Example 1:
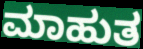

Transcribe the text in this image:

ಮಾಹುತ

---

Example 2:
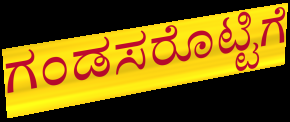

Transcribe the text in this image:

ಗಂಡಸರೊಟ್ಟಿಗೆ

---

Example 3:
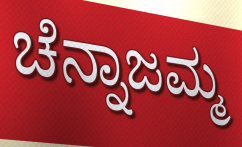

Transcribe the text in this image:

ಚೆನ್ನಾಜಮ್ಮ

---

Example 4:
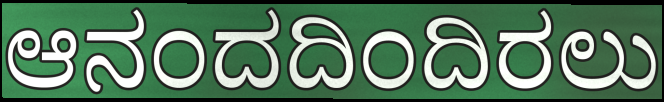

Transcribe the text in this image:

ಆನಂದದಿಂದಿರಲು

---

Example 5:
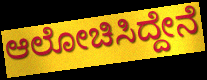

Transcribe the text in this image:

ಆಲೋಚಿಸಿದ್ದೇನೆ